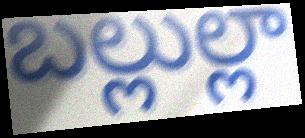
బల్లుల్లా